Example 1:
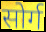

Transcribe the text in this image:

सोर्ग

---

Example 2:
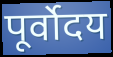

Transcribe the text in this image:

पूर्वोदय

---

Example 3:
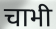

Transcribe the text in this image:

चाभी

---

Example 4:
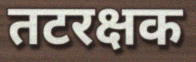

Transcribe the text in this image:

तटरक्षक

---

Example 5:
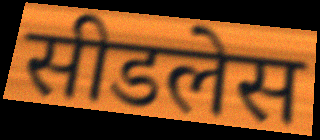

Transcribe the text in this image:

सीडलेस